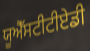
ਯੂਐੱਸਟੀਟੀਏਡੀ